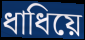
ধাধিয়ে